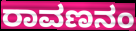
ರಾವಣನಂ